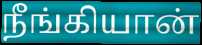
நீங்கியான்